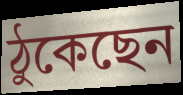
ঠুকেছেন